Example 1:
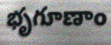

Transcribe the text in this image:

భృగూణాం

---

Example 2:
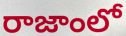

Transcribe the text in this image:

రాజాంలో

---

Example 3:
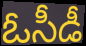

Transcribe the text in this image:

ఓసీడీ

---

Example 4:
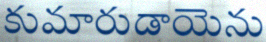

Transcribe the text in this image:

కుమారుడాయెను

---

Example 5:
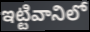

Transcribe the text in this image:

ఇట్టివానిలో